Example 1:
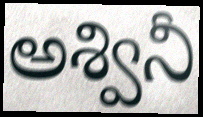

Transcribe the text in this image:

అశ్వినీ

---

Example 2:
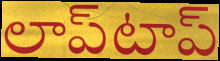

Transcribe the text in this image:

లాప్‌టాప్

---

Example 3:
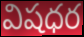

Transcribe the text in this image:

విషధర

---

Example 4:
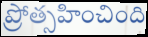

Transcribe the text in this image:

ప్రోత్సహించింది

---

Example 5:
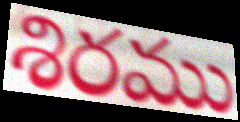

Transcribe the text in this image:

శిరము